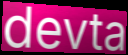
devta